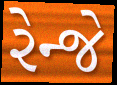
રેન્જે